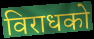
विराधको